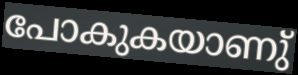
പോകുകയാണു്